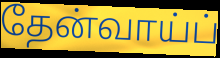
தேன்வாய்ப்